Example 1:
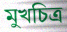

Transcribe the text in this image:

মুখচিত্র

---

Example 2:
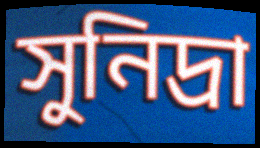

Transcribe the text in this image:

সুনিদ্রা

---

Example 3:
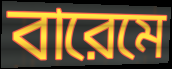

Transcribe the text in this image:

বারেমে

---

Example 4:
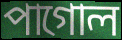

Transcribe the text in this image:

পাগোল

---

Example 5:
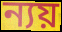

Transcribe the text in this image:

ন্যয়